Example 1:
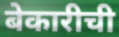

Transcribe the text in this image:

बेकारीची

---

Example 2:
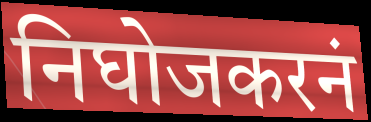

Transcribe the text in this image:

निघोजकरनं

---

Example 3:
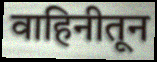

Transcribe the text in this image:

वाहिनीतून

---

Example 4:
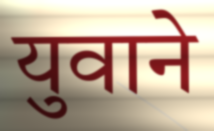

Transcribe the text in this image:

युवाने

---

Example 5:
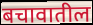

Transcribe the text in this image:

बचावातील